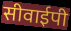
सीवाईपी